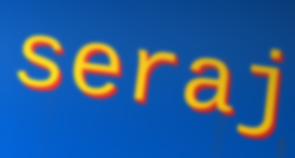
seraj